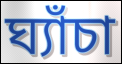
ঘ্যাঁচা